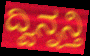
ದ್ವಿನ್ನನ್ತಿ